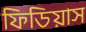
ফিডিয়াস